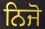
ਨਿਜੋ